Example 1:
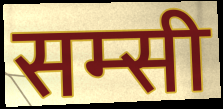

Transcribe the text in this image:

सम्सी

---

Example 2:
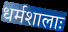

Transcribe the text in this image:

धर्मशालाः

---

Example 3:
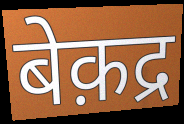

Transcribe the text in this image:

बेक़द्र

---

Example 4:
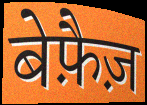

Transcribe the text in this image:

बेफ़ैज़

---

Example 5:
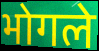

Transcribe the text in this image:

भोगले